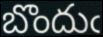
బొందుఁ